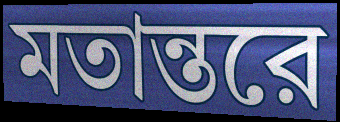
মতান্তরে